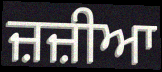
ਜ਼ਜ਼ੀਆ